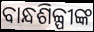
ବାନ୍ଧଶିଳ୍ପୀଙ୍କ